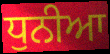
ਧੁਨੀਆ